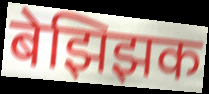
बेझिझक